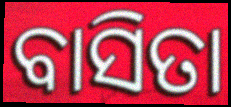
ବାସିତା